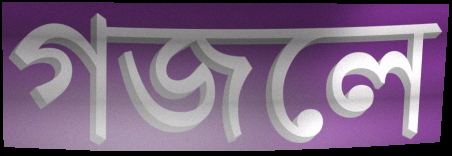
গজলে